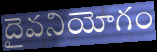
దైవనియోగం